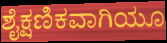
ಶೈಕ್ಷಣಿಕವಾಗಿಯೂ